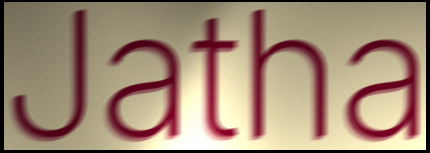
Jatha